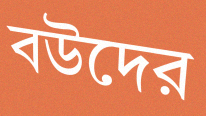
বউদের